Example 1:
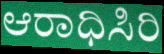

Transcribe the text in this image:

ಆರಾಧಿಸಿರಿ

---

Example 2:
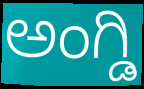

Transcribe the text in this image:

ಅಂಗ್ಡಿ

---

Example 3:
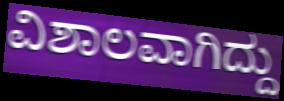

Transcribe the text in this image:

ವಿಶಾಲವಾಗಿದ್ದು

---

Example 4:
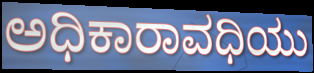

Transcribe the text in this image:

ಅಧಿಕಾರಾವಧಿಯು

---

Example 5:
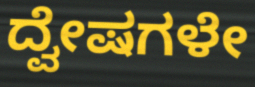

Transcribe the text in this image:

ದ್ವೇಷಗಳೇ